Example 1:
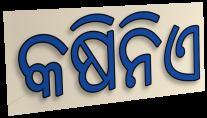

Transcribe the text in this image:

କଷିନିଏ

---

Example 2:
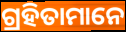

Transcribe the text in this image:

ଗ୍ରହିତାମାନେ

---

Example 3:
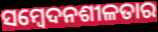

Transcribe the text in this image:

ସମ୍ୱେଦନଶୀଳତାର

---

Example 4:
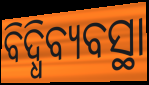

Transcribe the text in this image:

ବିଦ୍ଧିବ୍ୟବସ୍ଥା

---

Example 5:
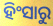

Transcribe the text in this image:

ହିଂସାରୁ